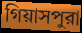
গিয়াসপুরা